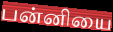
பன்னியை